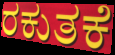
ರಕುತಕೆ